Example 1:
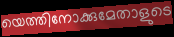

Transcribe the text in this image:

യെത്തിനോക്കുമേതാളുടെ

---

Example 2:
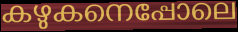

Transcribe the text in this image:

കഴുകനെപ്പോലെ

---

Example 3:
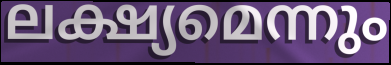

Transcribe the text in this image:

ലക്ഷ്യമെന്നും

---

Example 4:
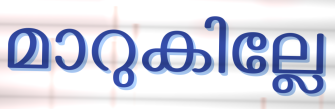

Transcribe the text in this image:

മാറുകില്ലേ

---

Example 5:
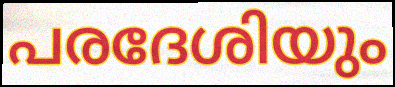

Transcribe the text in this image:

പരദേശിയും